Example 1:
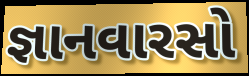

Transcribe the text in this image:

જ્ઞાનવારસો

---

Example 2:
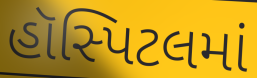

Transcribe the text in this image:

હૉસ્પિટલમાં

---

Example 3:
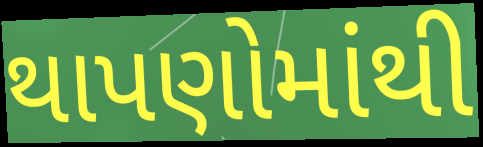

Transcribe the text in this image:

થાપણોમાંથી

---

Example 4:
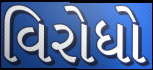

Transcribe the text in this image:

વિરોધો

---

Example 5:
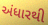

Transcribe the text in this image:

અંધારથી